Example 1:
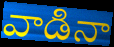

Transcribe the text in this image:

వాడినా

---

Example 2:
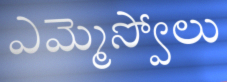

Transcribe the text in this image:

ఎమ్మెస్వోలు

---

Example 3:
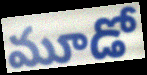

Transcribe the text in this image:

మూడో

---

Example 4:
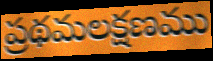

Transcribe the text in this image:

ప్రథమలక్షణము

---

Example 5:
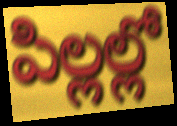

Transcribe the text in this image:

పిల్లల్లో